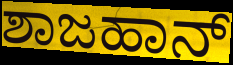
ಶಾಜಹಾನ್